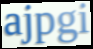
ajpgi